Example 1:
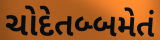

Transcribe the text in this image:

ચોદેતબ્બમેતં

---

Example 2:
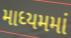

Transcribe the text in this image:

માધ્યમમાં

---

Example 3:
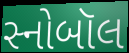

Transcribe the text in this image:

સ્નોબૉલ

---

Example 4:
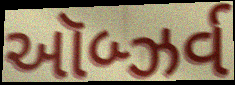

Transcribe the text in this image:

ઑબ્ઝર્વ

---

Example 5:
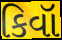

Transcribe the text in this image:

કિવૉ